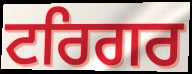
ਟਰਿਗਰ